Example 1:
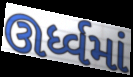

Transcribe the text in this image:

ઊર્ધ્વમાં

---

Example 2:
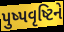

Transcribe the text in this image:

પુષ્પવૃષ્ટિને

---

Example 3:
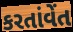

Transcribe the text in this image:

કરતાંવેંત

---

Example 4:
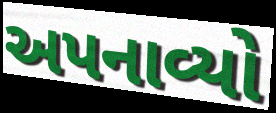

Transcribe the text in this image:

અપનાવ્યો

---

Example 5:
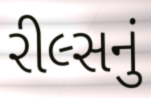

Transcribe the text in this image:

રીલ્સનું